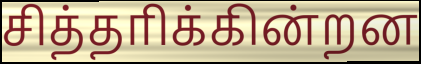
சித்தரிக்கின்றன